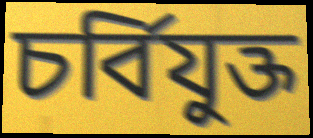
চৰ্বিযুক্ত